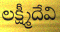
లక్ష్మీదేవి